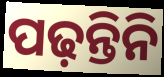
ପଢ଼ନ୍ତିନି